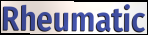
Rheumatic